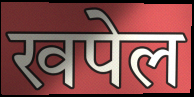
खपेल